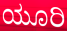
ಯೂರಿ